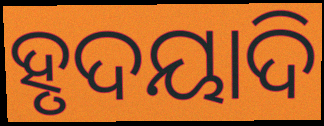
ହୃଦୟାଦି